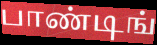
பாண்டிங்